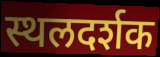
स्थलदर्शक